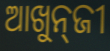
ଆଖୁନ୍‌ଜୀ